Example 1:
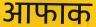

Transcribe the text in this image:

आफाक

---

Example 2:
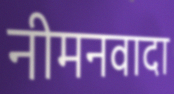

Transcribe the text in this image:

नीमनवादा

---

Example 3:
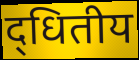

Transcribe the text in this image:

द्धितीय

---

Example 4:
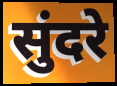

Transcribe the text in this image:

सुंदरे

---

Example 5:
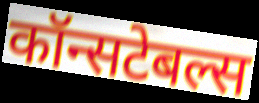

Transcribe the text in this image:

कॉन्सटेबल्स